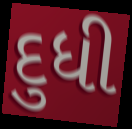
દુધી